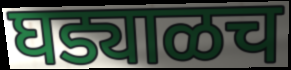
घड्याळच